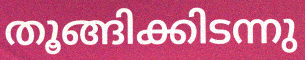
തൂങ്ങിക്കിടന്നു